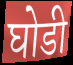
घोडी